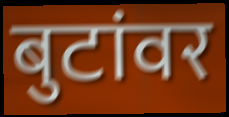
बुटांवर